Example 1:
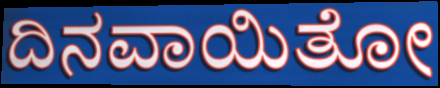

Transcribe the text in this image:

ದಿನವಾಯಿತೋ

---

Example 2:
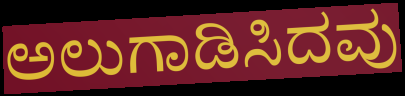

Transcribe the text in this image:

ಅಲುಗಾಡಿಸಿದವು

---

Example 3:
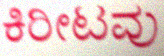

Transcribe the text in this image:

ಕಿರೀಟವು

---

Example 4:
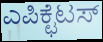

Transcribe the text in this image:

ಎಪಿಕ್ಟೆಟಸ್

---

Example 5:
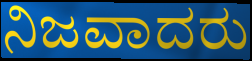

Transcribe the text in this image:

ನಿಜವಾದರು